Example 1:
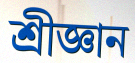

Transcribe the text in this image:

শ্ৰীজ্ঞান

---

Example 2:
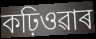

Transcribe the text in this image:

কঢ়িওৱাৰ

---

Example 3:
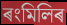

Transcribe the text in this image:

ৰংমিলিৰ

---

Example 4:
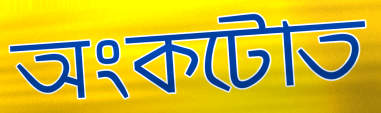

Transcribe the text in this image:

অংকটোত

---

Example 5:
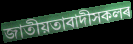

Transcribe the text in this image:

জাতীয়তাবাদীসকলৰ